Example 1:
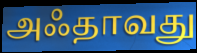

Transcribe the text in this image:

அஃதாவது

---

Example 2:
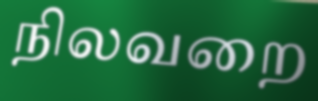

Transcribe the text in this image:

நிலவறை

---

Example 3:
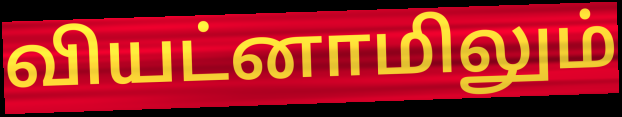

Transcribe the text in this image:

வியட்னாமிலும்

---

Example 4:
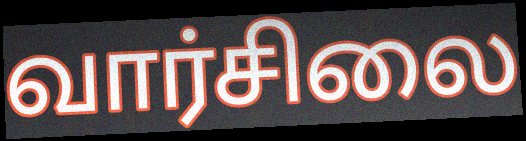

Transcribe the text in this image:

வார்சிலை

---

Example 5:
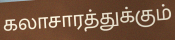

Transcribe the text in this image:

கலாசாரத்துக்கும்